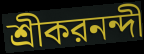
শ্রীকরনন্দী